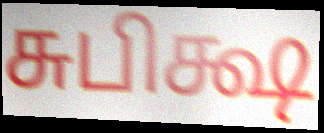
சுபிக்ஷ